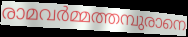
രാമവർമ്മത്തമ്പുരാനെ